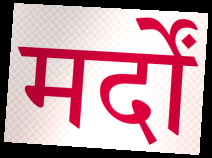
मर्दों